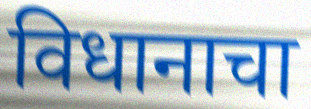
विधानाचा